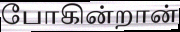
போகின்றான்